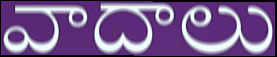
వాదాలు